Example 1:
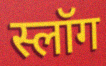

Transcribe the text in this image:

स्लॉग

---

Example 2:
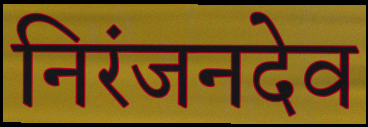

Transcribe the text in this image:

निरंजनदेव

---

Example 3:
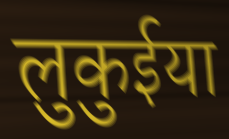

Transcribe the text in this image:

लुकुईया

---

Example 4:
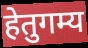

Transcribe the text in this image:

हेतुगम्य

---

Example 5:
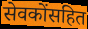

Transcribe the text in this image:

सेवकोंसहित